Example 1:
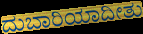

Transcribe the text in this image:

ದುಬಾರಿಯಾದೀತು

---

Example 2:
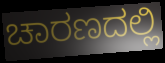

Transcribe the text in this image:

ಚಾರಣದಲ್ಲಿ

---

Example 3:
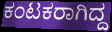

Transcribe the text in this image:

ಕಂಟಕರಾಗಿದ್ದ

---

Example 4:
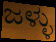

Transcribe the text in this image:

ಜಳ್ಳು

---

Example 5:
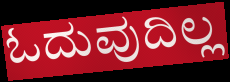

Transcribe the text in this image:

ಓದುವುದಿಲ್ಲ